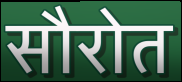
सौरोत